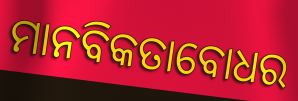
ମାନବିକତାବୋଧର